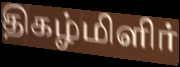
திகழ்மிளிர்